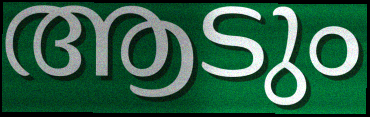
ആടും